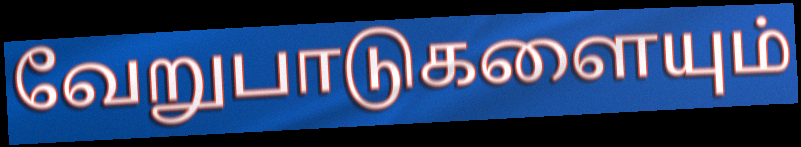
வேறுபாடுகளையும்